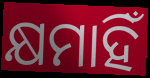
କ୍ଷମାହିଁ